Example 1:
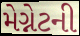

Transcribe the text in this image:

મેગ્નેટની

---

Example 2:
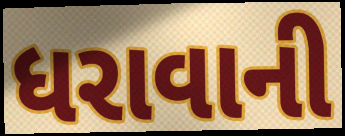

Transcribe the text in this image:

ધરાવાની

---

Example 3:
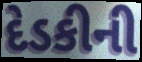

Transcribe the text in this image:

દેડકીની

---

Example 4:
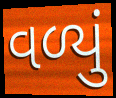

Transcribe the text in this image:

વળ્યું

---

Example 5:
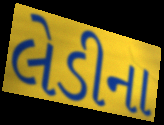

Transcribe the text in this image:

લેડીના